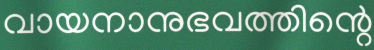
വായനാനുഭവത്തിന്റെ